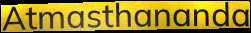
Atmasthananda